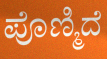
ಪೊಣ್ಮಿದೆ